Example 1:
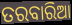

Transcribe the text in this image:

ତରବାରିଆ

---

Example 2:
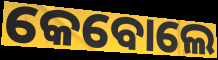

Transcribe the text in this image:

କେବୋଲେ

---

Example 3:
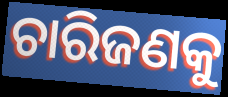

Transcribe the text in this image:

ଚାରିଜଣକୁ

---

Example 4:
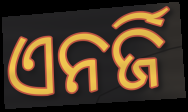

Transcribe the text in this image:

ଏନର୍ଜି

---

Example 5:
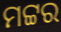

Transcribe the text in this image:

ମଟ୍ଟର